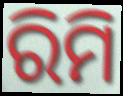
ରିମି